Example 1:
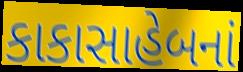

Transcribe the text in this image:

કાકાસાહેબનાં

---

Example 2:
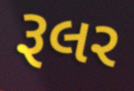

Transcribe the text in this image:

રૂલર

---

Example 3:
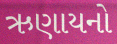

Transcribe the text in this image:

ઋણાયનો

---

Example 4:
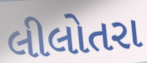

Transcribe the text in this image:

લીલોતરા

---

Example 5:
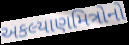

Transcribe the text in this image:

અકલ્યાણમિત્રોનો